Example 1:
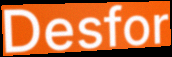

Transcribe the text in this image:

Desfor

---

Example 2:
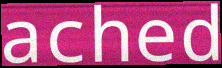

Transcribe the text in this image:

ached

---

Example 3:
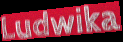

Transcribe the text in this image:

Ludwika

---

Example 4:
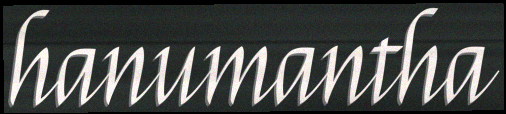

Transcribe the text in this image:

hanumantha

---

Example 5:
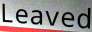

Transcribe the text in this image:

Leaved